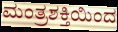
ಮಂತ್ರಶಕ್ತಿಯಿಂದ